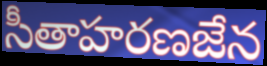
సీతాహరణజేన